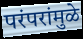
परंपरांमुळे